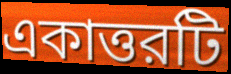
একাত্তরটি